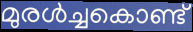
മുരൾച്ചകൊണ്ട്